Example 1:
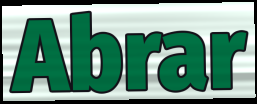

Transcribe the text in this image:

Abrar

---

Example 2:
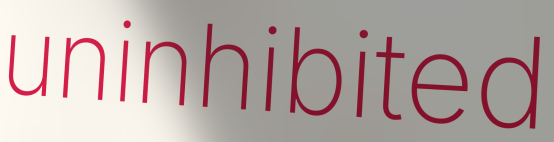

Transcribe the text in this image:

uninhibited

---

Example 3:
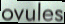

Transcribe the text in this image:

ovules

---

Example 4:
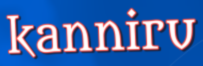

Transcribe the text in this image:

kanniru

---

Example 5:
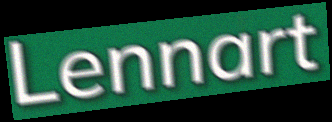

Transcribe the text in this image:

Lennart